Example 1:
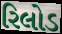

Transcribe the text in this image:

રિલોડ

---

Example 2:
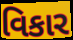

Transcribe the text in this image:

વિકાર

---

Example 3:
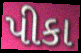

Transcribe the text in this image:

પીકા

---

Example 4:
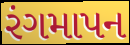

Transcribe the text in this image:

રંગમાપન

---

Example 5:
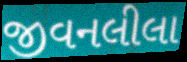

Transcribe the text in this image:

જીવનલીલા